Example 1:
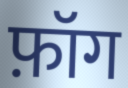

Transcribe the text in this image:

फ़ॉग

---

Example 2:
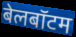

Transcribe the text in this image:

बेलबॉटम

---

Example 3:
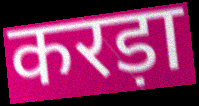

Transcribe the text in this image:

करड़ा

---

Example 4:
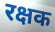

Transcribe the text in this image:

रक्षक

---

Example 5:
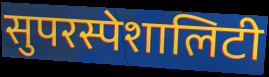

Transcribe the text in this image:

सुपरस्पेशालिटी